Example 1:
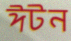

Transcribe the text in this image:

ঈটন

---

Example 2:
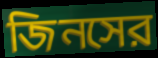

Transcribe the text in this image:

জিনসের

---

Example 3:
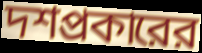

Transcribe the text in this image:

দশপ্রকারের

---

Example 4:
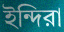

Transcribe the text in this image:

ইন্দিরা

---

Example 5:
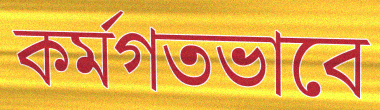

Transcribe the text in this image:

কর্মগতভাবে